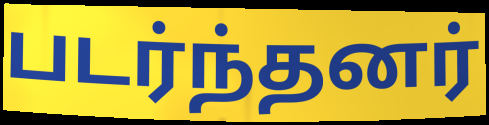
படர்ந்தனர்